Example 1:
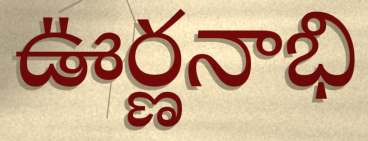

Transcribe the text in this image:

ఊర్ణనాభి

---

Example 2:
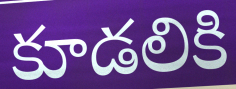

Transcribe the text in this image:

కూడలికి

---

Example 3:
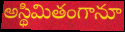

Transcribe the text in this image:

అస్థిమితంగానూ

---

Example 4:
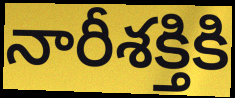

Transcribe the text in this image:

నారీశక్తికి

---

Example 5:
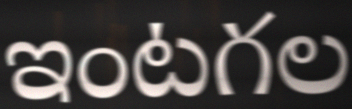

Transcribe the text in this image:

ఇంటగల